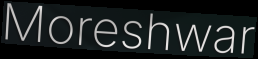
Moreshwar